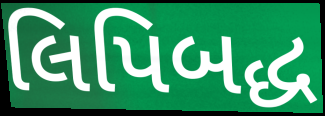
લિપિબદ્ધ